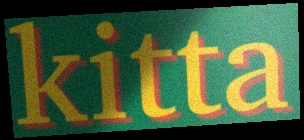
kitta